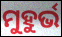
ମୁହୁର୍ଭ